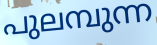
പുലമ്പുന്ന